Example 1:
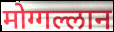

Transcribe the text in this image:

मोग्गल्लान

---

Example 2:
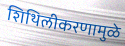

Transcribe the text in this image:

शिथिलीकरणामुळे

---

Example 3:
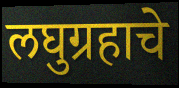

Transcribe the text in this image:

लघुग्रहाचे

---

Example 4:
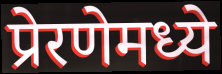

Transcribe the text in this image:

प्रेरणेमध्ये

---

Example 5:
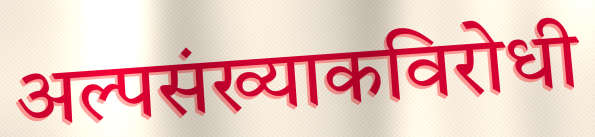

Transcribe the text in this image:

अल्पसंख्याकविरोधी